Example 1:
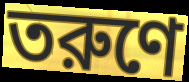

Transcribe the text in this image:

তরুণে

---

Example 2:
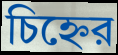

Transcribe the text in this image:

চিহ্নের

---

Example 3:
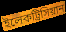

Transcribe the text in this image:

ইলেকট্রিসিয়ান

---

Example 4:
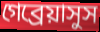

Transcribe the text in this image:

গেব্রেয়াসুস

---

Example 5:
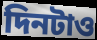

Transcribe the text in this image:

দিনটাও